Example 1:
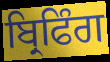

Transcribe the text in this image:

ਬ੍ਰਿਫਿੰਗ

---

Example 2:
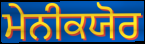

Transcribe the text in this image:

ਮੇਨੀਕਯੋਰ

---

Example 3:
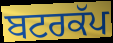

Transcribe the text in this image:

ਬਟਰਕੱਪ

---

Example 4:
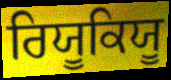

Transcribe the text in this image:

ਰਿਯੂਕਿਯੂ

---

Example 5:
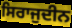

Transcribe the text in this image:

ਸਿਰਾਜੁਦੀਨ